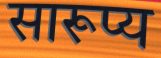
सारूप्य